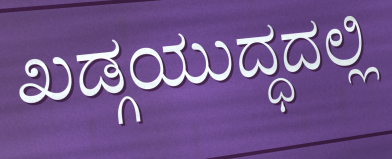
ಖಡ್ಗಯುದ್ಧದಲ್ಲಿ